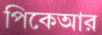
পিকেআর